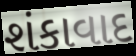
શંકાવાદ